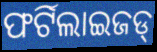
ଫର୍ଟିଲାଇଜଡ୍